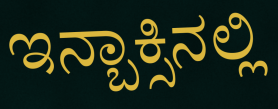
ಇನ್ಬಾಕ್ಸಿನಲ್ಲಿ